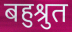
बहुश्रुत